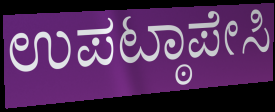
ಉಪಟ್ಠಾಪೇಸಿ